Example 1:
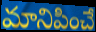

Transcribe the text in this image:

మానిపించే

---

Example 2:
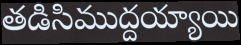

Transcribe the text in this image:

తడిసిముద్దయ్యాయి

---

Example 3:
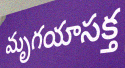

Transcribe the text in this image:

మృగయాసక్త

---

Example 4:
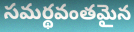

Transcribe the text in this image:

సమర్థవంతమైన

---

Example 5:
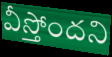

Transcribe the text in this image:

వీస్తోందని